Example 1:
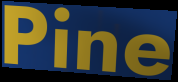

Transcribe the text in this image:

Pine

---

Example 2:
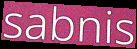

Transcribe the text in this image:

sabnis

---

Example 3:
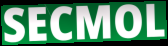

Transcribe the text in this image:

SECMOL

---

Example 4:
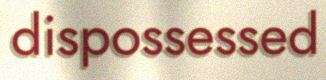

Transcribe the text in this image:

dispossessed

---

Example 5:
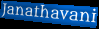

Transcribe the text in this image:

Janathavani